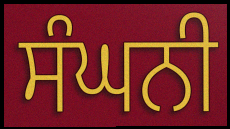
ਸੰਘਨੀ